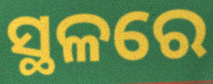
ସ୍ଥଳରେ